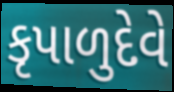
કૃપાળુદેવે